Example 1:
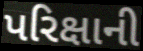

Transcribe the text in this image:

પરિક્ષાની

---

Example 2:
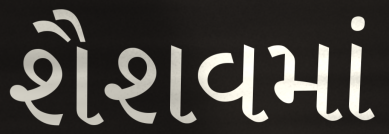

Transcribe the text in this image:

શૈશવમાં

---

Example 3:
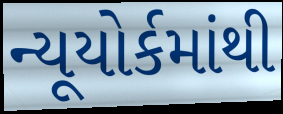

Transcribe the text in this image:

ન્યૂયોર્કમાંથી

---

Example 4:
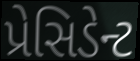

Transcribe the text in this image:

પ્રેસિડેન્ટ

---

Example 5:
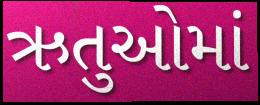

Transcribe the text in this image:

ઋતુઓમાં